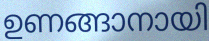
ഉണങ്ങാനായി